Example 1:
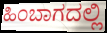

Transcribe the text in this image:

ಹಿಂಬಾಗದಲ್ಲಿ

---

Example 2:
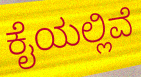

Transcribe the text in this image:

ಕೈಯಲ್ಲಿವೆ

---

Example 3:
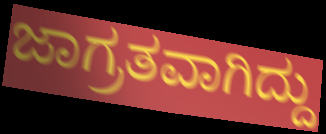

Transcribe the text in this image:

ಜಾಗ್ರತವಾಗಿದ್ದು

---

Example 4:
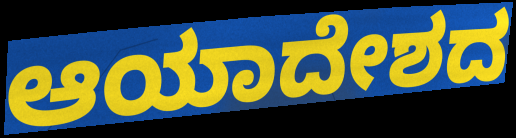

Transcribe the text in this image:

ಆಯಾದೇಶದ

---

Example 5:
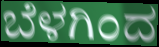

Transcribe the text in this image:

ಬೆಳಗಿಂದ